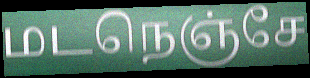
மடநெஞ்சே